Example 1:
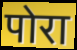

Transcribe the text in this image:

पोरा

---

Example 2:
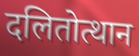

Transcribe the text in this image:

दलितोत्थान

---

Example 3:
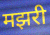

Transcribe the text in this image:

मझरी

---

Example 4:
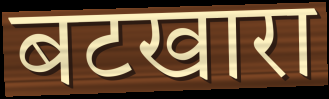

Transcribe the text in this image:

बटखारा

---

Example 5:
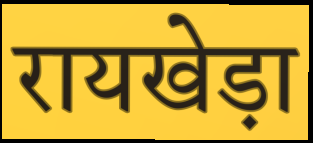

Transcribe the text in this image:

रायखेड़ा